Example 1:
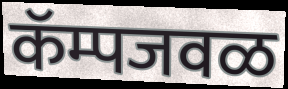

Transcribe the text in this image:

कॅम्पजवळ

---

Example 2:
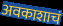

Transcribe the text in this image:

अवकाशाचं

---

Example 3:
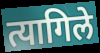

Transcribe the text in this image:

त्यागिले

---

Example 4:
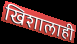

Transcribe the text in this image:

खिशालाही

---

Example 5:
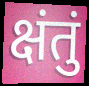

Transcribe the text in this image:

क्षंतुं